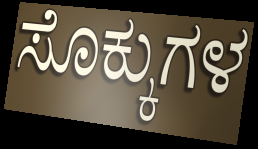
ಸೊಕ್ಕುಗಳ